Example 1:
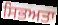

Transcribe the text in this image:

ਸਿਭਅਤਾ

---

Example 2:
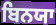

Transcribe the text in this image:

ਬਿਨਯਾ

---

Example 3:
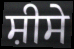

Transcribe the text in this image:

ਸ਼ੀਸੇ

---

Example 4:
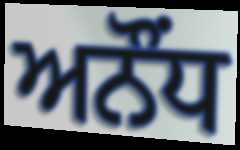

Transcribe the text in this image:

ਅਨੌਂਧ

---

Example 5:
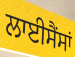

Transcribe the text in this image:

ਲਾਈਸੈਂਸਾਂ